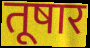
तूषार